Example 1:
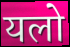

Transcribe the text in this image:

यलो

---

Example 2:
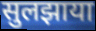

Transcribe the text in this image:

सुलझाया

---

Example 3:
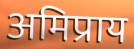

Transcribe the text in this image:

अमिप्राय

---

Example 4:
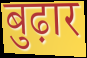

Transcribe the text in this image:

बुढ़ार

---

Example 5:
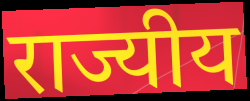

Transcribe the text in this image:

राज्‍यीय